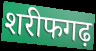
शरीफगढ़